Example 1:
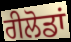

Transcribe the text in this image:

ਰੀਲੋਡਾਂ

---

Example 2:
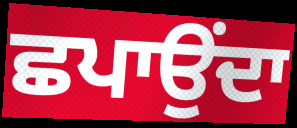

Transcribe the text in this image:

ਛਪਾਉਂਦਾ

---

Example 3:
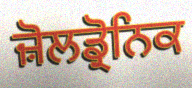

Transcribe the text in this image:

ਜ਼ੋਲਡ੍ਰੋਨਿਕ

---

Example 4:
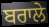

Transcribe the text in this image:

ਬਰਾਲੇ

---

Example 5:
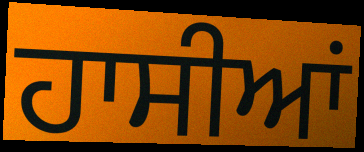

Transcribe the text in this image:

ਹਾਸੀਆਂ